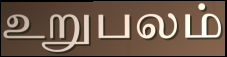
உறுபலம்